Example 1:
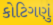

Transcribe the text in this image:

કોટિગણું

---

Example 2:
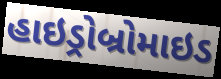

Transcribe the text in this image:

હાઇડ્રોબ્રોમાઇડ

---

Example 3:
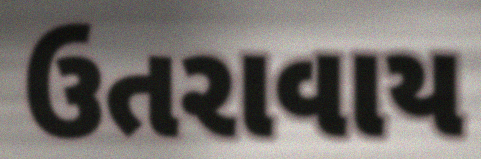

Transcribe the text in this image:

ઉતરાવાય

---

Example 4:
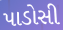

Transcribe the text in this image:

પાડોસી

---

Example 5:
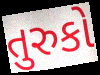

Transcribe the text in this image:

તુરુકો